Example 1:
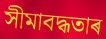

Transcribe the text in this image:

সীমাবদ্ধতাৰ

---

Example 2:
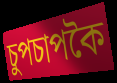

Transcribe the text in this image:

চুপচাপকৈ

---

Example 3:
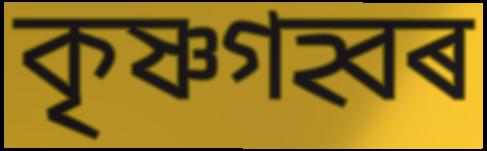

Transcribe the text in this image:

কৃষ্ণগহ্বৰ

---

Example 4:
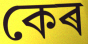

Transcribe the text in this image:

কেৰ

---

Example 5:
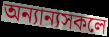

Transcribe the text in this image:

অন্যান্যসকলে